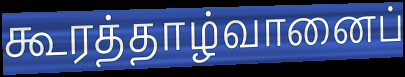
கூரத்தாழ்வானைப்